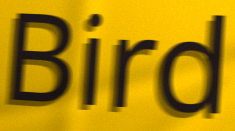
Bird